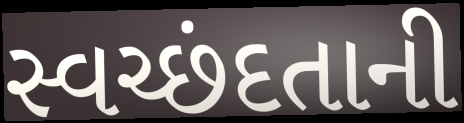
સ્વચ્છંદતાની